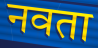
नवता